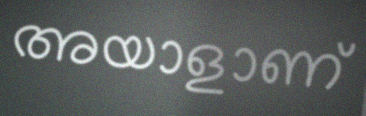
അയാളാണ്